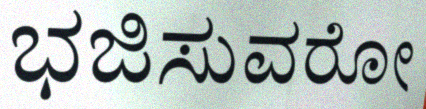
ಭಜಿಸುವರೋ